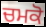
ਚਮਕੋ